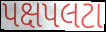
પક્ષપલટા